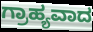
ಗ್ರಾಹ್ಯವಾದ